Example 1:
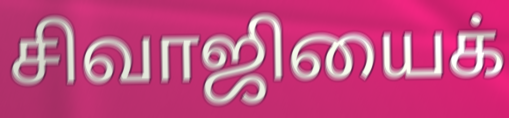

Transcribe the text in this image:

சிவாஜியைக்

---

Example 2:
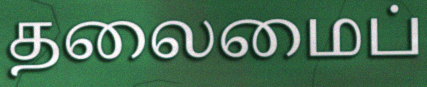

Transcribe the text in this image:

தலைமைப்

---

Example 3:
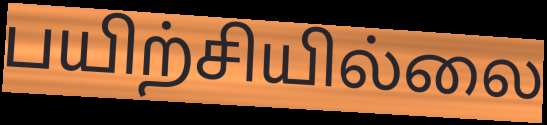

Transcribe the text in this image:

பயிற்சியில்லை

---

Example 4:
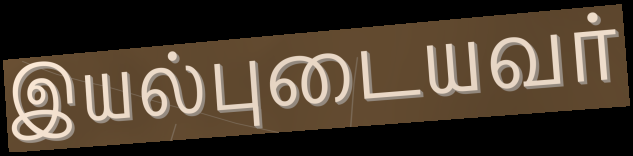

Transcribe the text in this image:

இயல்புடையவர்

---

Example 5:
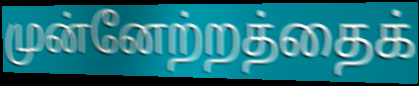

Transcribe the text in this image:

முன்னேற்றத்தைக்